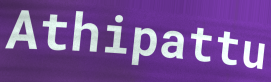
Athipattu